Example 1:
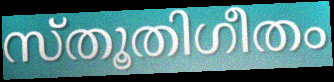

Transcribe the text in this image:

സ്തൂതിഗീതം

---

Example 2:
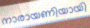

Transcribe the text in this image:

നാരായണിയായി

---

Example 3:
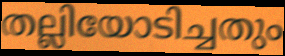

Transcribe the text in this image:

തല്ലിയോടിച്ചതും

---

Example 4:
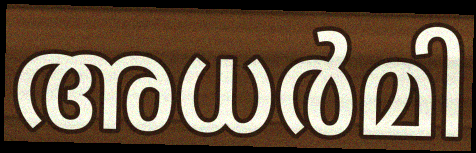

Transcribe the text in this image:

അധർമി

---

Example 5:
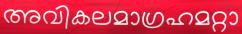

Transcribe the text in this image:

അവികലമാഗ്രഹമറ്റാ